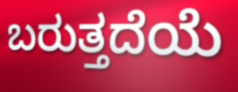
ಬರುತ್ತದೆಯೆ